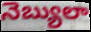
నెబ్యులా